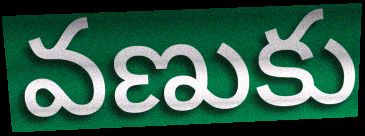
వణుకు